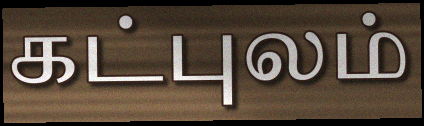
கட்புலம்